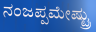
ನಂಜಪ್ಪಮೇಷ್ಟ್ರು